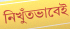
নিখুঁতভাবেই